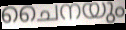
ചൈനയും